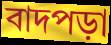
বাদপড়া